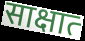
साक्षात्‍